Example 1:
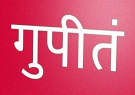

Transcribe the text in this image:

गुपीतं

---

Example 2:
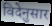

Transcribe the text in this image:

विदेनुसार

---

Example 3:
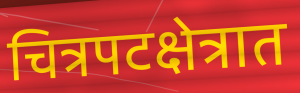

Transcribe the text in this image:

चित्रपटक्षेत्रात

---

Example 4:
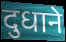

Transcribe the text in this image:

दुधाने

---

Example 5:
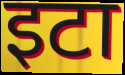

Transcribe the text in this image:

इटा